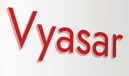
Vyasar